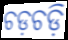
ଚଡ଼ଚଡ଼ି